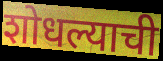
शोधल्याची